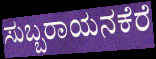
ಸುಬ್ಬರಾಯನಕೆರೆ